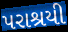
પરાશ્રયી